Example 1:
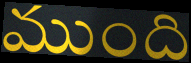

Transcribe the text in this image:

ముంది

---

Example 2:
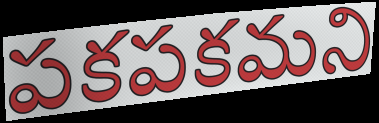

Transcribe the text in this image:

పకపకమని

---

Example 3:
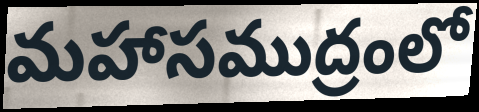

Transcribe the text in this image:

మహాసముద్రంలో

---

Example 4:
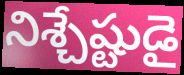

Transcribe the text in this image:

నిశ్చేష్టుడై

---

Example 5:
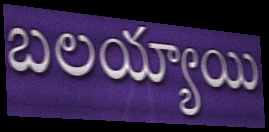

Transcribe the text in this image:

బలయ్యాయి